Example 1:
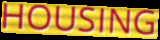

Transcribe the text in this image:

HOUSING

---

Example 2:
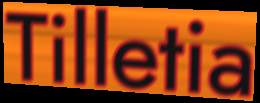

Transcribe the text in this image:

Tilletia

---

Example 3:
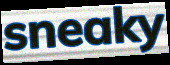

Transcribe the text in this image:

sneaky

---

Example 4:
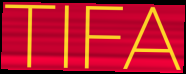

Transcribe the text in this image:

TIFA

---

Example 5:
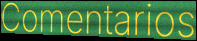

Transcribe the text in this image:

Comentarios